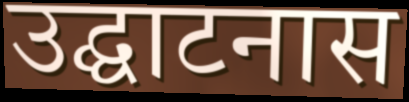
उद्घाटनास